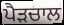
ਪੈੜਚਾਲ